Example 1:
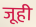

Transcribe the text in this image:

जूही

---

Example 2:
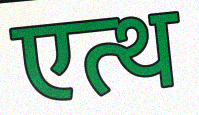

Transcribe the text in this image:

एत्थ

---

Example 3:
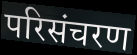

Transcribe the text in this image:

परिसंचरण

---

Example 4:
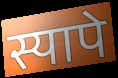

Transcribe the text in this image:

स्यापे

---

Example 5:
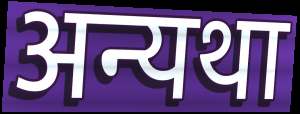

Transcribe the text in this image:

अन्यथा